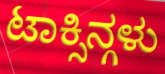
ಟಾಕ್ಸಿನ್ಗಳು